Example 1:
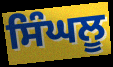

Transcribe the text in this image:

ਸਿੰਘਲੂ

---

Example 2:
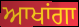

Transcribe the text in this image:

ਆਖਾਂਗਾ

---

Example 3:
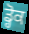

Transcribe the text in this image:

ਡ੍ਹੋਕ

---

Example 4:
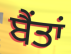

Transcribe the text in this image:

ਬੈਂਤਾਂ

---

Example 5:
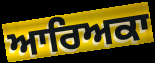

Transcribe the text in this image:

ਆਰਿਅਕਾ